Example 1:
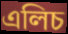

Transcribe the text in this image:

এলিচ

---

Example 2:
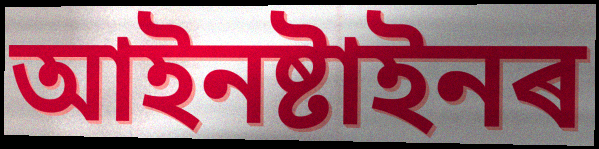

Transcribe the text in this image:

আইনষ্টাইনৰ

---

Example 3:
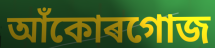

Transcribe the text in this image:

আঁকোৰগোজ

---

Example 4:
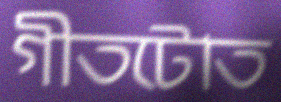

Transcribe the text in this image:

গীতটোত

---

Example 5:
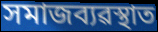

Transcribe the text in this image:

সমাজব্যৱস্থাত